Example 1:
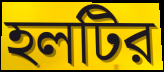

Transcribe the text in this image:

হলটির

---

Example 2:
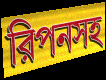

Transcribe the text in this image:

রিপনসহ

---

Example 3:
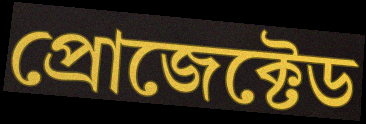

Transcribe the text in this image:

প্রোজেক্টেড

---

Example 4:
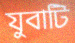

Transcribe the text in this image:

যুবাটি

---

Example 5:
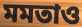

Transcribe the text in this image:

মমতাও